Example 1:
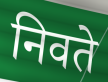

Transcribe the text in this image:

निवते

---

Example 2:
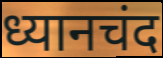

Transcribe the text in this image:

ध्यानचंद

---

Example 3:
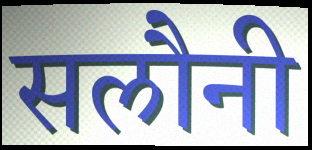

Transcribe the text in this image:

सलौनी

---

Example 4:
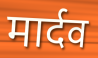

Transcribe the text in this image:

मार्दव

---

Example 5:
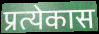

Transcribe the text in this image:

प्रत्येकास